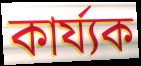
কাৰ্য্যক